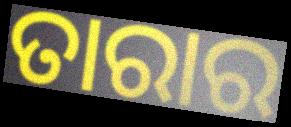
ତାରାର